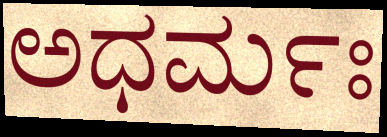
ಅಧರ್ಮಃ